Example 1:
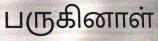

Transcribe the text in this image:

பருகினாள்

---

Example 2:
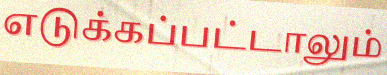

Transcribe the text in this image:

எடுக்கப்பட்டாலும்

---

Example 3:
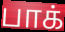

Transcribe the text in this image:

பாக்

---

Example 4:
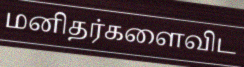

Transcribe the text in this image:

மனிதர்களைவிட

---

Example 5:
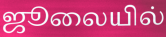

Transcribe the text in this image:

ஜூலையில்